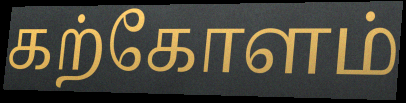
கற்கோளம்